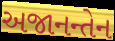
અજાનન્તેન